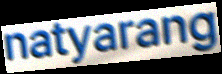
natyarang